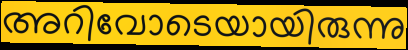
അറിവോടെയായിരുന്നു